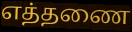
எத்தணை